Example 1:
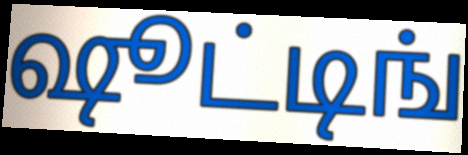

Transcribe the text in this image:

ஷூட்டிங்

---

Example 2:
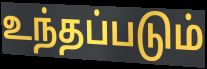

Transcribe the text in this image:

உந்தப்படும்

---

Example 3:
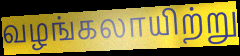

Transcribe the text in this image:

வழங்கலாயிற்று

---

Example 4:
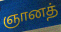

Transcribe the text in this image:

ஞானத்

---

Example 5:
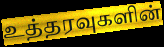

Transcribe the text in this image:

உத்தரவுகளின்